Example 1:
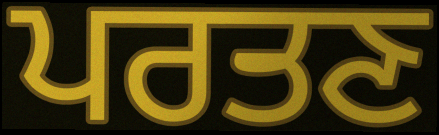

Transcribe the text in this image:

ਪਰਤਣ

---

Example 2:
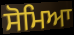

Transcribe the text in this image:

ਸੋਮਿਆ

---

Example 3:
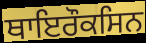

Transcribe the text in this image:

ਥਾਇਰੌਕਸਿਨ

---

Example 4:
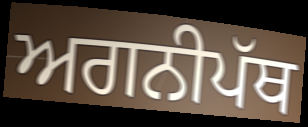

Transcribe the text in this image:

ਅਗਨੀਪੱਥ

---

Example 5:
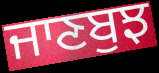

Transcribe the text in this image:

ਜਾਣਬੁਝ